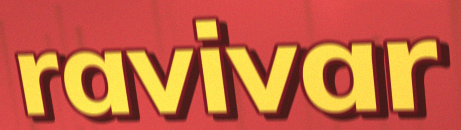
ravivar